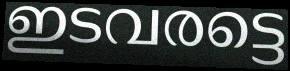
ഇടവരട്ടെ